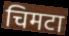
चिमटा